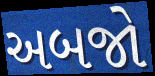
અબજો